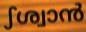
ഽശ്വാൻ